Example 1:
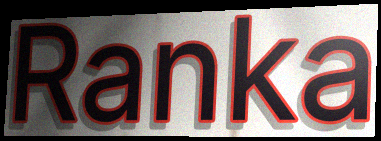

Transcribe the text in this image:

Ranka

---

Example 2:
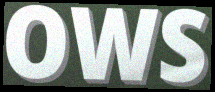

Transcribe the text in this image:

OWS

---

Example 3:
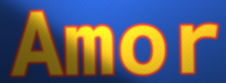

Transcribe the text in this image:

Amor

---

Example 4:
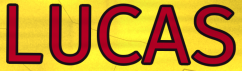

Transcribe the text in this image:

LUCAS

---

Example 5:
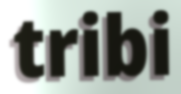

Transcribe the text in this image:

tribi